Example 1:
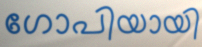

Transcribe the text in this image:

ഗോപിയായി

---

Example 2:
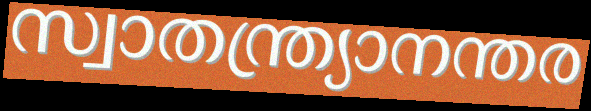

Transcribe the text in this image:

സ്വാതന്ത്ര്യാനന്തര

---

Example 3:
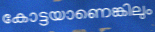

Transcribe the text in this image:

കോട്ടയാണെങ്കിലും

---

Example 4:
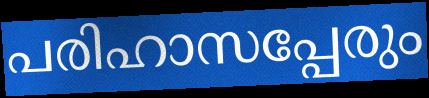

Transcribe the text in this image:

പരിഹാസപ്പേരും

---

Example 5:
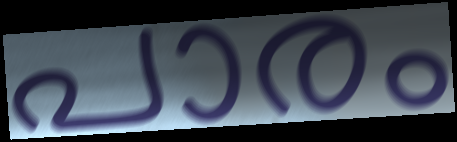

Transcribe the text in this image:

പാരം